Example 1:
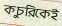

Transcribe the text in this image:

কচুরিকেই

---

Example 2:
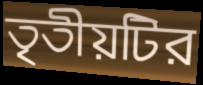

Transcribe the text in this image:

তৃতীয়টির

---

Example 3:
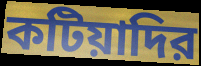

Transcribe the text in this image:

কটিয়াদির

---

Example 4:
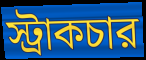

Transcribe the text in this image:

স্ট্রাকচার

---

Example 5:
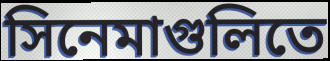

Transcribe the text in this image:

সিনেমাগুলিতে